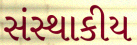
સંસ્થાકીય